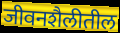
जीवनशैलीतील